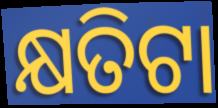
କ୍ଷତିଟା